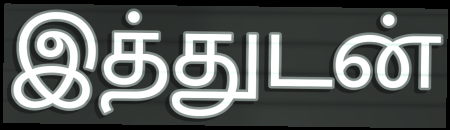
இத்துடன்